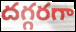
దగ్గరగా